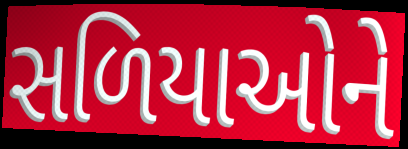
સળિયાઓને